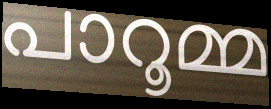
പാറൂമ്മ